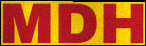
MDH